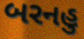
બરનહુ